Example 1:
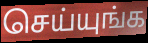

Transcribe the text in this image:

செய்யுங்க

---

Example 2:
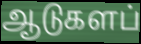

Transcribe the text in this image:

ஆடுகளப்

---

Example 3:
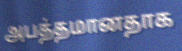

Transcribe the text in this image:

அபத்தமானதாக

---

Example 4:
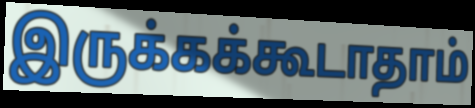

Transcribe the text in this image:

இருக்கக்கூடாதாம்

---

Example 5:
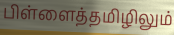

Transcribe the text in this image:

பிள்ளைத்தமிழிலும்